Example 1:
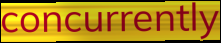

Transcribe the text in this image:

concurrently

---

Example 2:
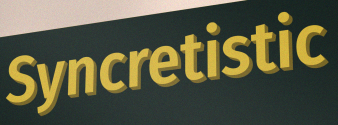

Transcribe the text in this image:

Syncretistic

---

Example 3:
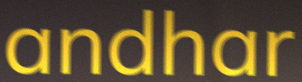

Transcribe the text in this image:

andhar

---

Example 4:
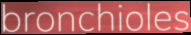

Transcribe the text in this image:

bronchioles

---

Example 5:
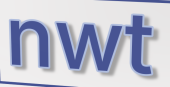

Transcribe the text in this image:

nwt